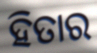
ହିତାର